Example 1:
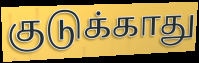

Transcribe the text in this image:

குடுக்காது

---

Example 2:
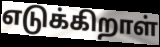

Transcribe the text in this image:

எடுக்கிறாள்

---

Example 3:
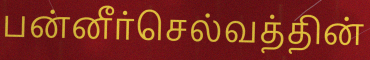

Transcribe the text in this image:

பன்னீர்செல்வத்தின்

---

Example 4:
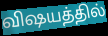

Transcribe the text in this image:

விஷயத்தில்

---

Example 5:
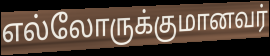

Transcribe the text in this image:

எல்லோருக்குமானவர்